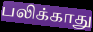
பலிக்காது